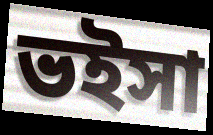
ভইসা